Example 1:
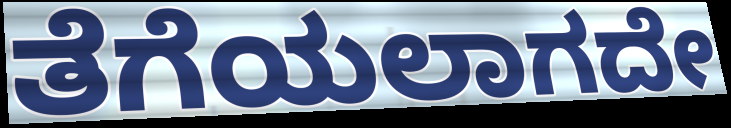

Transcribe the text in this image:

ತೆಗೆಯಲಾಗದೇ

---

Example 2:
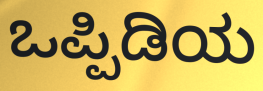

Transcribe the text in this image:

ಒಪ್ಪಿಡಿಯ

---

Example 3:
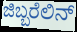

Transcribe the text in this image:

ಜಿಬ್ಬರೆಲಿನ್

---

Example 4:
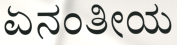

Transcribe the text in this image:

ಏನಂತೀಯ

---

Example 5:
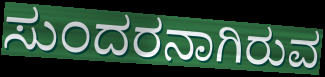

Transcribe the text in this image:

ಸುಂದರನಾಗಿರುವ